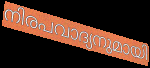
നിരപവാദ്യനുമായി